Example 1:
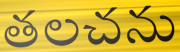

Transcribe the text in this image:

తలచను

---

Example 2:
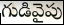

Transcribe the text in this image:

గుడివైపు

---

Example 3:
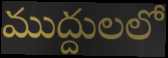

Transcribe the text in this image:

ముద్దులలో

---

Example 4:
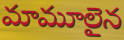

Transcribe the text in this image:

మామూలైన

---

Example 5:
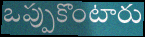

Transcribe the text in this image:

ఒప్పుకొంటారు